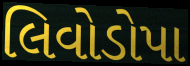
લિવોડોપા